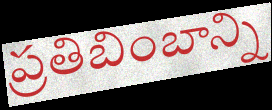
ప్రతిబింబాన్ని